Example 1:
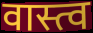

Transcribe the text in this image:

वास्त्व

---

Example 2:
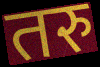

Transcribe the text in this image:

तरु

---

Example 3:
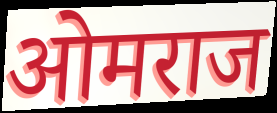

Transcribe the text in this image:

ओमराज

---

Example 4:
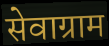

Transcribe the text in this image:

सेवाग्राम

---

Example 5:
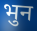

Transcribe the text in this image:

भुन